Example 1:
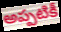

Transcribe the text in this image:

అప్పటికీ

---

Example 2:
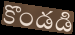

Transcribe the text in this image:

కొండడి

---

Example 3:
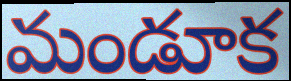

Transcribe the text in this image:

మండూక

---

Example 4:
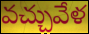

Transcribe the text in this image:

వచ్చువేళ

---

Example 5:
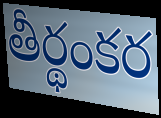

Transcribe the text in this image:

తీర్థంకర